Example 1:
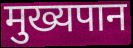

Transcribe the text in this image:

मुख्यपान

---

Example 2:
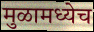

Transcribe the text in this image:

मुळामध्येच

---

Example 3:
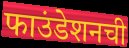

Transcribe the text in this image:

फाउंडेशनची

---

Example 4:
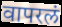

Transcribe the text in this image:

वापरलं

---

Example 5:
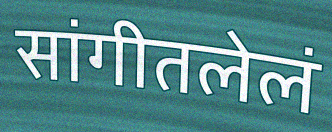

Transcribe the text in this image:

सांगीतलेलं